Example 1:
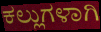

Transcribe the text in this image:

ಕಲ್ಲುಗಳಾಗಿ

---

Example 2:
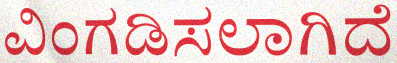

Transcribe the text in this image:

ವಿಂಗಡಿಸಲಾಗಿದೆ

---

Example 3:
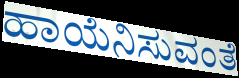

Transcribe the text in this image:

ಹಾಯೆನಿಸುವಂತೆ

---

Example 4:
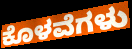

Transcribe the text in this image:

ಕೊಳವೆಗಳು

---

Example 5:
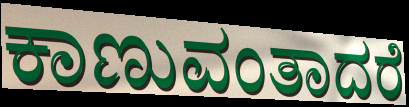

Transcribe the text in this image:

ಕಾಣುವಂತಾದರೆ